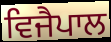
ਵਿਜੈਪਾਲ